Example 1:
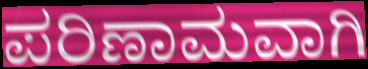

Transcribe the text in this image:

ಪರಿಣಾಮವಾಗಿ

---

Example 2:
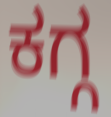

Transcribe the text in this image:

ಕಗ್ಗ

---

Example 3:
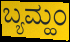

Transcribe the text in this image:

ಬ್ಯಮ್ಹಂ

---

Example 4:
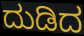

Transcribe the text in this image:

ದುಡಿದ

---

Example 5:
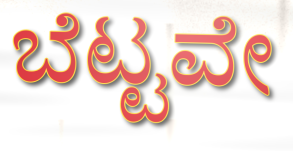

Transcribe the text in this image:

ಬೆಟ್ಟವೇ